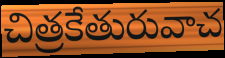
చిత్రకేతురువాచ